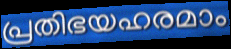
പ്രതിഭയഹരമാം